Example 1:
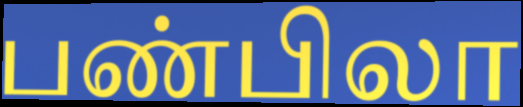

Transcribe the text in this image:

பண்பிலா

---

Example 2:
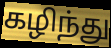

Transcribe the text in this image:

கழிந்து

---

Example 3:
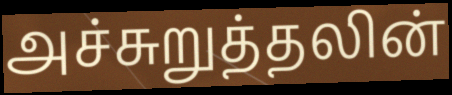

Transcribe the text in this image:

அச்சுறுத்தலின்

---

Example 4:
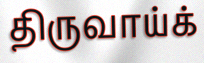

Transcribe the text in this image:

திருவாய்க்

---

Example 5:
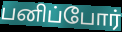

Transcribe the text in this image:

பனிப்போர்